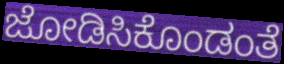
ಜೋಡಿಸಿಕೊಂಡಂತೆ